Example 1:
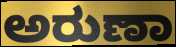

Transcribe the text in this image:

ಅರುಣಾ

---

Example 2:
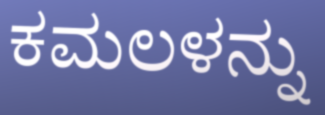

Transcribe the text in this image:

ಕಮಲಳನ್ನು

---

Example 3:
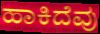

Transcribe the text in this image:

ಹಾಕಿದೆವು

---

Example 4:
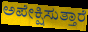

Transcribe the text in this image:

ಅಪೇಕ್ಷಿಸುತ್ತಾರೆ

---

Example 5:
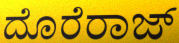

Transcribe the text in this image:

ದೊರೆರಾಜ್